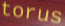
torus